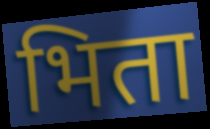
भिता